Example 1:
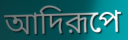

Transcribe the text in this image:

আদিরূপে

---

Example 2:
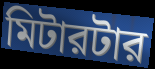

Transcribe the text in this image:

মিটারটার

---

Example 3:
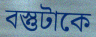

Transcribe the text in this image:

বস্তুটাকে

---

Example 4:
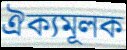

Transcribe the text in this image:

ঐক্যমূলক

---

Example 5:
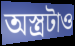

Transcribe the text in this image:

অস্ত্রটাও